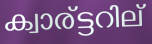
ക്വാര്ട്ടറില്